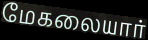
மேகலையார்